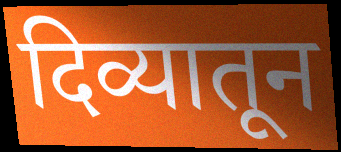
दिव्यातून